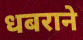
धबराने